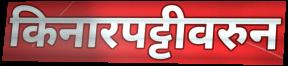
किनारपट्टीवरुन